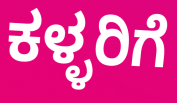
ಕಳ್ಳರಿಗೆ